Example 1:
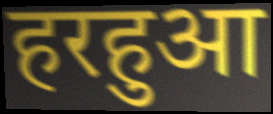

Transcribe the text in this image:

हरहुआ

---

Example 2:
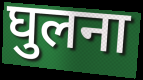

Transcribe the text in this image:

घुलना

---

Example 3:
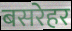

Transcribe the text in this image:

बसरेहर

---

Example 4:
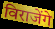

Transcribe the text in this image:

विराजेंगे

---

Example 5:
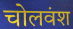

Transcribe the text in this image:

चोलवंश